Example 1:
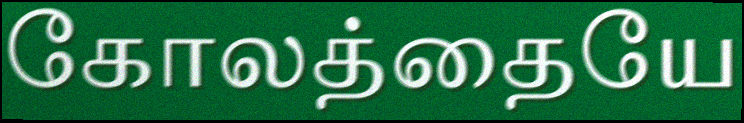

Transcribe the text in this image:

கோலத்தையே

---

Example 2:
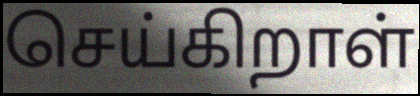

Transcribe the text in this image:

செய்கிறாள்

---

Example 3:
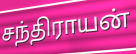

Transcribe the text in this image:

சந்திராயன்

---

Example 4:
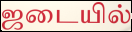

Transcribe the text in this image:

ஜடையில்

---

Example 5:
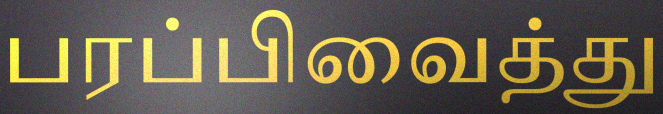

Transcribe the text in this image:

பரப்பிவைத்து